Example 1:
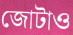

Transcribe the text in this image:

জোটাও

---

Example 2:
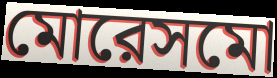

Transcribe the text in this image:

মোরেসমো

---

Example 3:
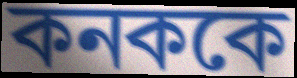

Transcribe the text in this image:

কনককে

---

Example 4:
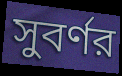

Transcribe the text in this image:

সুবর্ণর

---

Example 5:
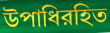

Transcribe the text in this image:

উপাধিরহিত